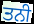
ਤਨੀ